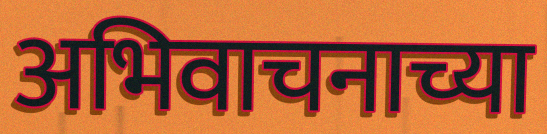
अभिवाचनाच्या